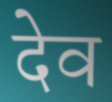
देव